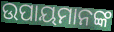
ଉପାୟମାନଙ୍କ